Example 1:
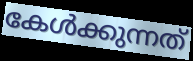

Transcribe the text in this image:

കേൾക്കുന്നത്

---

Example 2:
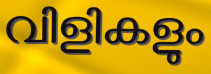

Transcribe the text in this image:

വിളികളും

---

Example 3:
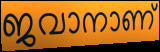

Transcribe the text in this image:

ജവാനാണ്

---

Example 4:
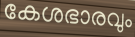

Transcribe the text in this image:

കേശഭാരവും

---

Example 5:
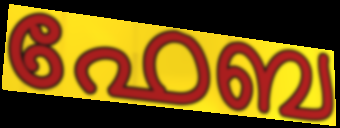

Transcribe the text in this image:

ഫേബ